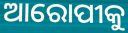
ଆରୋପୀକୁ